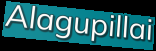
Alagupillai